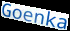
Goenka